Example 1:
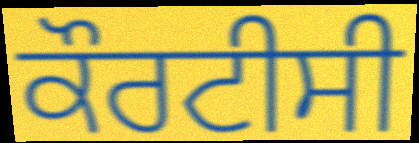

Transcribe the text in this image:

ਕੌਰਟੀਸੀ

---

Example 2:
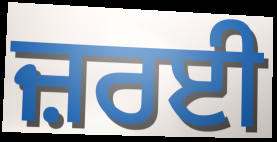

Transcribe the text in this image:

ਜ਼ਰਈ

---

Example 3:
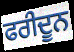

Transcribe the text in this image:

ਫਰੀਦੂਨ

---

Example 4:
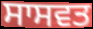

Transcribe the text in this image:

ਸਾਸਵਤ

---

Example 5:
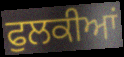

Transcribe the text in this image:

ਫੁਲਕੀਆਂ